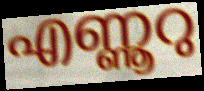
എണ്ണൂറു